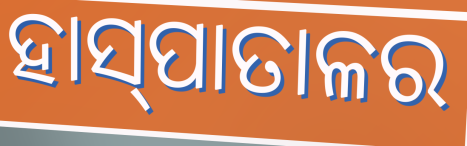
ହାସ୍‍ପାତାଳର